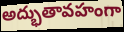
అద్భుతావహంగా